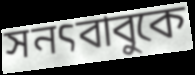
সনৎবাবুকে